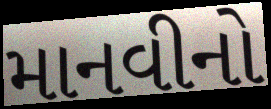
માનવીનો